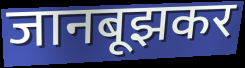
जानबूझकर